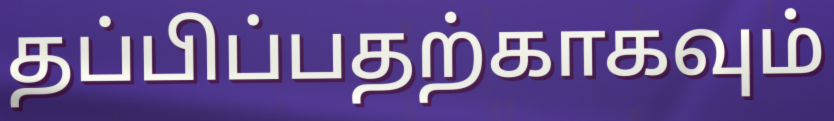
தப்பிப்பதற்காகவும்